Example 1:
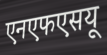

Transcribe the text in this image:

एनएफएसयू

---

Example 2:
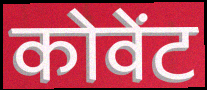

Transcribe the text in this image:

कोवेंट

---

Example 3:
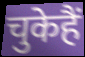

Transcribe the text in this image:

चुकेहैं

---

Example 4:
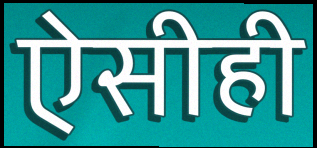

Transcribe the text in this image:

ऐसीही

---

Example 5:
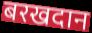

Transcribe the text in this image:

बरखदान